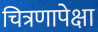
चित्रणापेक्षा